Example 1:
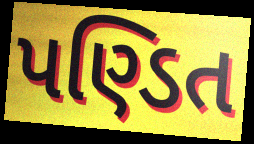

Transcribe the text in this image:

પણ્ડિત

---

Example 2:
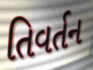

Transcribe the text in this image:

તિવર્તન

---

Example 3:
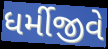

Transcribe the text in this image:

ધર્મીજીવે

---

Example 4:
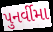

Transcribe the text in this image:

પુનર્વીમા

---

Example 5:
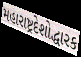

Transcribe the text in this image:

મહારાષ્ટ્રદેશોદ્ધારક